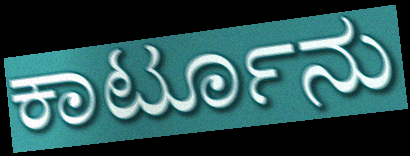
ಕಾರ್ಟೂನು